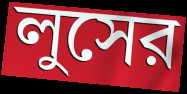
লুসের